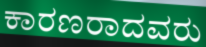
ಕಾರಣರಾದವರು